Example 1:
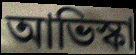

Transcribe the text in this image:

আভিস্কা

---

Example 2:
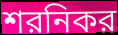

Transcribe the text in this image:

শরনিকর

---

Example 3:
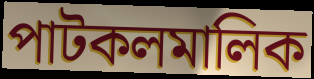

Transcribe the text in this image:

পাটকলমালিক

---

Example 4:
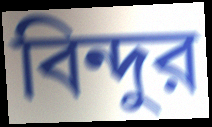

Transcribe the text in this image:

বিন্দুর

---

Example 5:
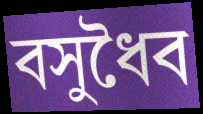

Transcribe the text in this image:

বসুধৈব